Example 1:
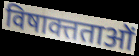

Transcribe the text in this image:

विषाक्तताओं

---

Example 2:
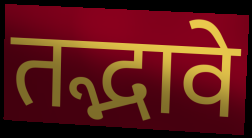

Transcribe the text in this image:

तद्भावे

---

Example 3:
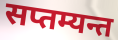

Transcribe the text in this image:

सप्तम्यन्त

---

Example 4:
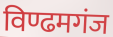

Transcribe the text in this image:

विण्ढमगंज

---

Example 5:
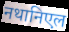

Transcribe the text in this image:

नथानिएल